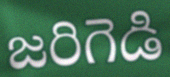
జరిగెడి